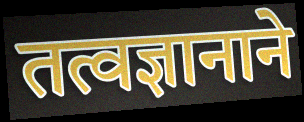
तत्वज्ञानाने